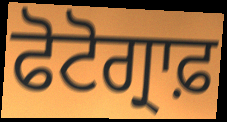
ਫੋਟੋਗ੍ਰਾਫ਼